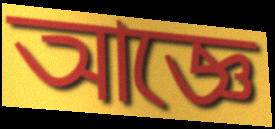
আজ্ঞে